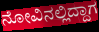
ನೋವಿನಲ್ಲಿದ್ದಾಗ